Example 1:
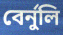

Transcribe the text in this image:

বেৰ্নুলি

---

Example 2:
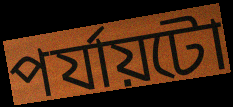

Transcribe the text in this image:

পৰ্যায়টো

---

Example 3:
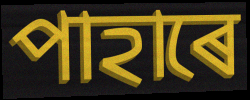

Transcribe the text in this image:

পাহাৰে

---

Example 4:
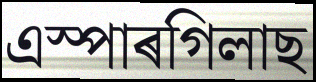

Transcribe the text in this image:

এস্পাৰগিলাছ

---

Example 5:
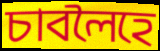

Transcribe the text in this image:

চাবলৈহে